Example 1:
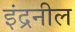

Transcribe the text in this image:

इंद्रनील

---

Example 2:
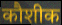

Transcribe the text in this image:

कौशीक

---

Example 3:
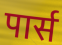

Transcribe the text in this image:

पार्स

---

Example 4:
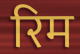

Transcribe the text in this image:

रिम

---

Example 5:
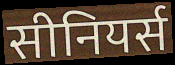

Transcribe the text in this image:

सीनियर्स